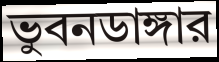
ভুবনডাঙ্গার